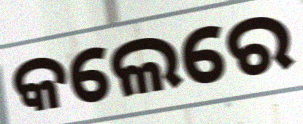
କଲେରେ